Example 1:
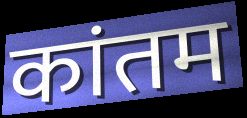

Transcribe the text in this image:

कांतम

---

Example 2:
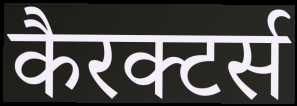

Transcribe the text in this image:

कैरक्टर्स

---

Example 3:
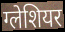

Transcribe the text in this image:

ग्लेशियर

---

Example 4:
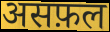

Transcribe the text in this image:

असफ़ल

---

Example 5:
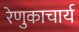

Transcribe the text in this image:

रेणुकाचार्य